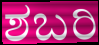
ಶಬರಿ